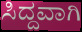
ಸಿದ್ದವಾಗಿ